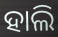
ହାଲି